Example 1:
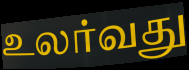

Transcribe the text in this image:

உலர்வது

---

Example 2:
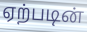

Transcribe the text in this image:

ஏற்படின்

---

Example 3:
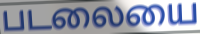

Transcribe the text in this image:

படலையை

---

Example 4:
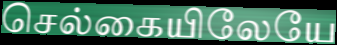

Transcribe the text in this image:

செல்கையிலேயே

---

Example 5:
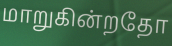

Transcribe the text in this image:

மாறுகின்றதோ